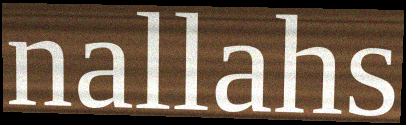
nallahs